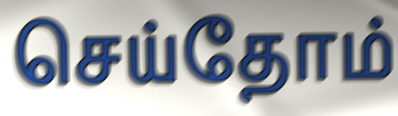
செய்தோம்